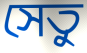
সেতু